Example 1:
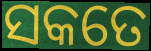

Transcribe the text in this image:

ସକତେ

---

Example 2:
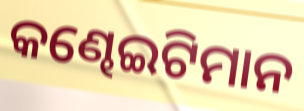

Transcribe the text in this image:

କଣ୍ଢେଇଟିମାନ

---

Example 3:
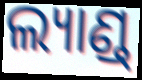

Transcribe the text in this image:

ଲ୍ୟାଣ୍ଡ୍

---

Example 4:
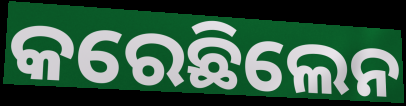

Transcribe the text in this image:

କରେଛିଲେନ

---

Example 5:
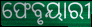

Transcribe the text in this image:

ଫେବୃୟାରୀ